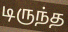
டிருந்த